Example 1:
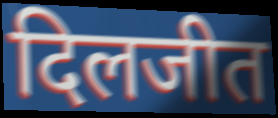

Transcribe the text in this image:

दिलजीत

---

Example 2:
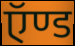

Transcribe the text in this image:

ऍण्ड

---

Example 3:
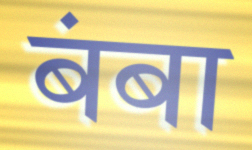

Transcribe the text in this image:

बंबा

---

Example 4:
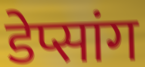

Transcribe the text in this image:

डेप्सांग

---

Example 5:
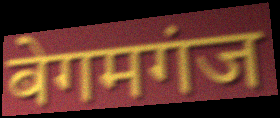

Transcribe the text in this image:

बेगमगंज